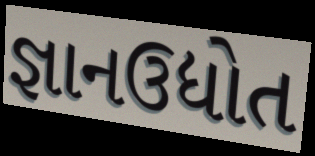
જ્ઞાનઉદ્યોત